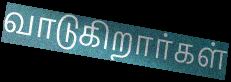
வாடுகிறார்கள்